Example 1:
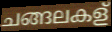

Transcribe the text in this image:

ചങ്ങലകള്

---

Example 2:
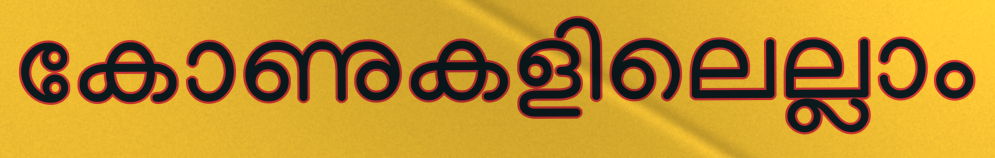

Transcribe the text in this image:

കോണുകളിലെല്ലാം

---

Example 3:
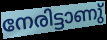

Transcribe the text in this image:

നേരിട്ടാണു്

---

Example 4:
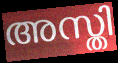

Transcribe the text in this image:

അസ്തി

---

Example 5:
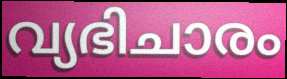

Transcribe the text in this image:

വ്യഭിചാരം